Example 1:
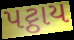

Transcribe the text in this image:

પટ્ઠાય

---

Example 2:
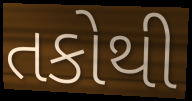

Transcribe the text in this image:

તકોથી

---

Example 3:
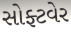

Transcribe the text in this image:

સોફ્ટવેર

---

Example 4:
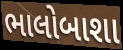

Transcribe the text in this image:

ભાલોબાશા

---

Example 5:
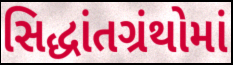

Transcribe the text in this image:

સિદ્ધાંતગ્રંથોમાં